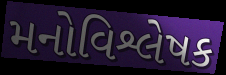
મનોવિશ્લેષક